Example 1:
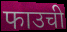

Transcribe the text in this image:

फाउची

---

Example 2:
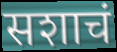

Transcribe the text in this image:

सशाचं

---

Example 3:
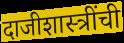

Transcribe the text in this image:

दाजीशास्त्रींची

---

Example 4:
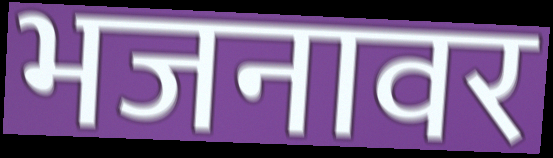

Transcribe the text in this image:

भजनावर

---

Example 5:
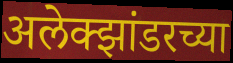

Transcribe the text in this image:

अलेक्झांडरच्या